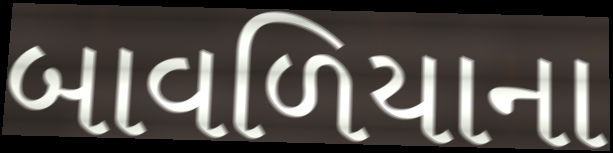
બાવળિયાના